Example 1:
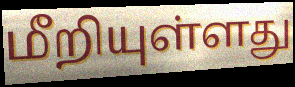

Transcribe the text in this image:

மீறியுள்ளது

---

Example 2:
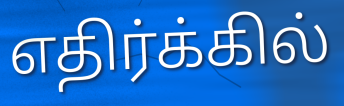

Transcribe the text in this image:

எதிர்க்கில்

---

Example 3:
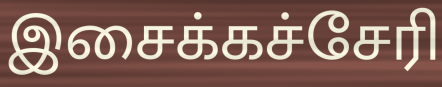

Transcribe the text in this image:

இசைக்கச்சேரி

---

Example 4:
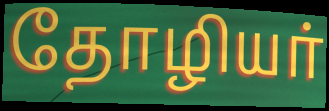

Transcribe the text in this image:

தோழியர்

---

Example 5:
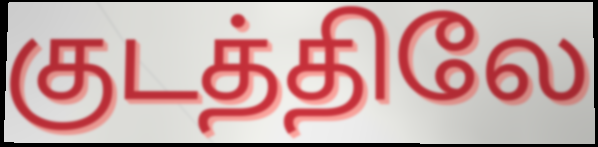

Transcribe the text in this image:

குடத்திலே